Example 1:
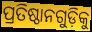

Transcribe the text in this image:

ପ୍ରତିଷ୍ଠାନଗୁଡ଼ିକୁ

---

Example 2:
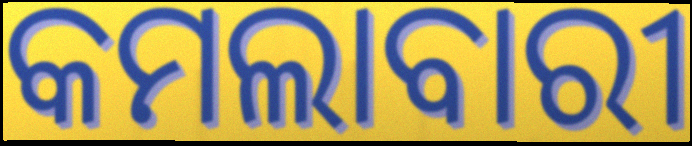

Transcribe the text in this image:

କମଲାବାରୀ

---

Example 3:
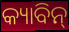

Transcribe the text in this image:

କ୍ୟାବିନ୍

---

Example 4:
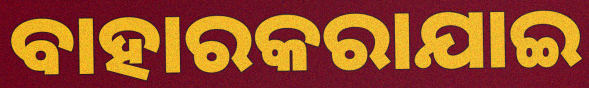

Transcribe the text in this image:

ବାହାରକରାଯାଇ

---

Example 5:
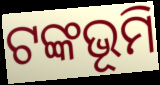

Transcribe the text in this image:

ଟଙ୍କଭୂମି